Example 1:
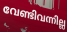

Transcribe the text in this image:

വേണ്ടിവന്നില്ല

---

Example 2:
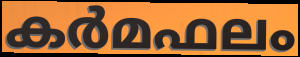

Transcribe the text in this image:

കർമഫലം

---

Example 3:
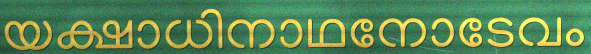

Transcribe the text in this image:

യക്ഷാധിനാഥനോടേവം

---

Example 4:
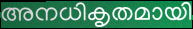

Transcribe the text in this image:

അനധികൃതമായി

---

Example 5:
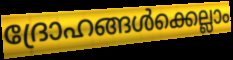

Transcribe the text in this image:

ദ്രോഹങ്ങൾക്കെല്ലാം